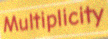
Multiplicity